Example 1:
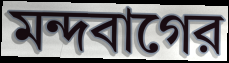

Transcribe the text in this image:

মন্দবাগের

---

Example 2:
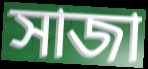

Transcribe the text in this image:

সাজা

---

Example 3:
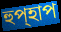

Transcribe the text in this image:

হুপ্হাপ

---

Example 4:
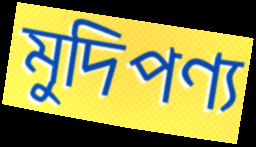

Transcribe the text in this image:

মুদিপণ্য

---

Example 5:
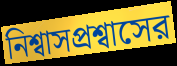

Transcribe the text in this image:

নিশ্বাসপ্রশ্বাসের